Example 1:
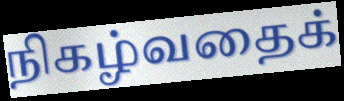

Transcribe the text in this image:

நிகழ்வதைக்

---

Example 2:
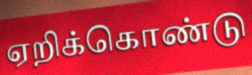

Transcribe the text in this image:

ஏறிக்கொண்டு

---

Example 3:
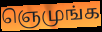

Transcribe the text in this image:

ஞெமுங்க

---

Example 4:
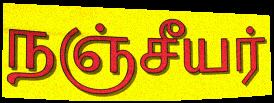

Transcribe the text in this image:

நஞ்சீயர்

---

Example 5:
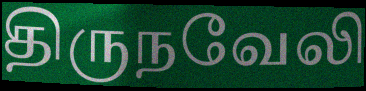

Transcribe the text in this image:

திருநவேலி